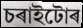
চৰাইটোৰ